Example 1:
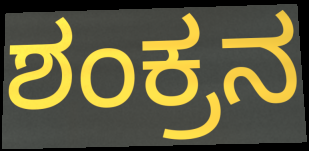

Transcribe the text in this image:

ಶಂಕ್ರನ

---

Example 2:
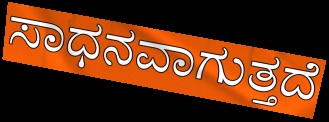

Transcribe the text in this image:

ಸಾಧನವಾಗುತ್ತದೆ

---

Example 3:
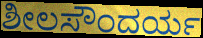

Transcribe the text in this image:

ಶೀಲಸೌಂದರ್ಯ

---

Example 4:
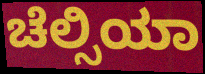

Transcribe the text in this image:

ಚೆಲ್ಸಿಯಾ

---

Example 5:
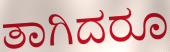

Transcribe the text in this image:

ತಾಗಿದರೂ